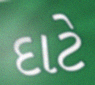
દાટે